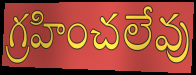
గ్రహించలేవు